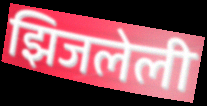
झिजलेली